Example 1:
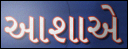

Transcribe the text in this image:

આશાએ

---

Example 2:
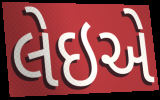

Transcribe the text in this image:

લેઇએ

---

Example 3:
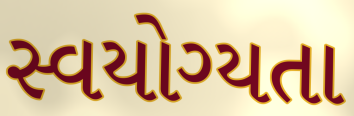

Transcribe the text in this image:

સ્વયોગ્યતા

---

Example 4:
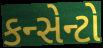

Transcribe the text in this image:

કન્સેન્ટો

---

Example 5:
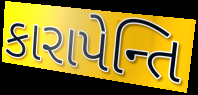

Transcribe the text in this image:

કારાપેન્તિ